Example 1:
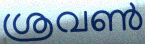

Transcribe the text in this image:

ശ്രവൺ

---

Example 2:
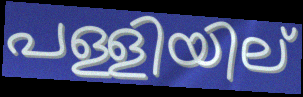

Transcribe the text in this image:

പള്ളിയില്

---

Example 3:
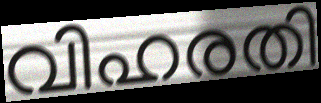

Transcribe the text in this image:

വിഹരതി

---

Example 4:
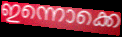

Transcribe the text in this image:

ഇന്നൊക്കെ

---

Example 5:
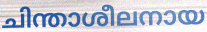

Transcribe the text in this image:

ചിന്താശീലനായ